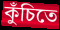
কুঁচিতে